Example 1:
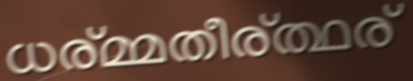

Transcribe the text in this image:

ധര്മ്മതീര്ത്ഥര്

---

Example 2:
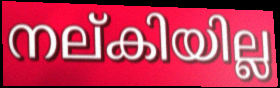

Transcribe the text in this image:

നല്കിയില്ല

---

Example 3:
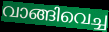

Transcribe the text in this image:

വാങ്ങിവെച്ച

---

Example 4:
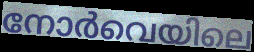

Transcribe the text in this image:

നോർവെയിലെ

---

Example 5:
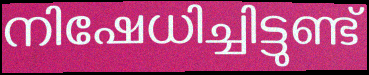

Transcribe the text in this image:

നിഷേധിച്ചിട്ടുണ്ട്